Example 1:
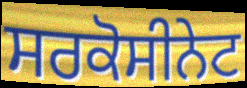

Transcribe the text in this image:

ਸਰਕੋਸੀਨੇਟ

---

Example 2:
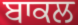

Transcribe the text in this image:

ਬਾਕਲ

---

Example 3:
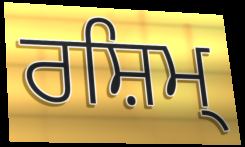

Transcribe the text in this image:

ਰਸ਼ਿਮ੍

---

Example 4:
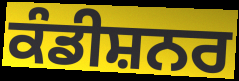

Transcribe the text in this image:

ਕੰਡੀਸ਼ਨਰ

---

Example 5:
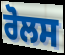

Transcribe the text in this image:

ਰੋਲਸ